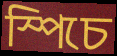
স্পিচে